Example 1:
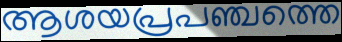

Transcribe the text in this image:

ആശയപ്രപഞ്ചത്തെ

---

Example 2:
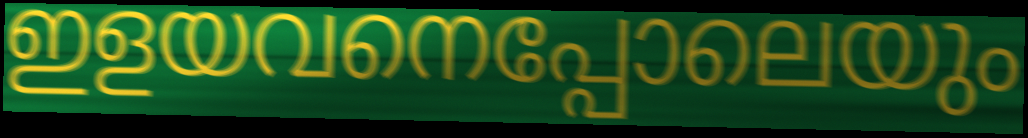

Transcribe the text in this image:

ഇളയവനെപ്പോലെയും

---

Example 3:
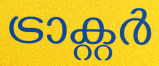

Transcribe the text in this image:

ട്രാക്റ്റർ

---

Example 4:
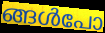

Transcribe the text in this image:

ങ്ങൾപോ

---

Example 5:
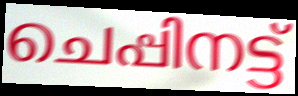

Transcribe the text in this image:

ചെപ്പിനട്ട്